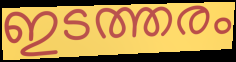
ഇടത്തരം